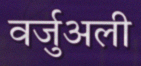
वर्जुअली